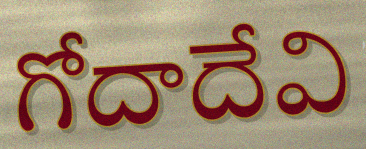
గోదాదేవి